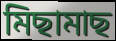
মিছামাছ